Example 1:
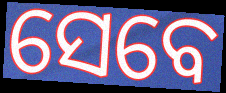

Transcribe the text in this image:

ସେବେ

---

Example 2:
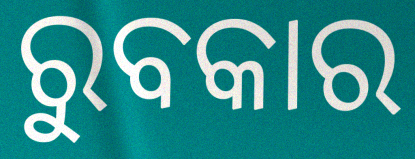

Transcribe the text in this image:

ରୁବକାର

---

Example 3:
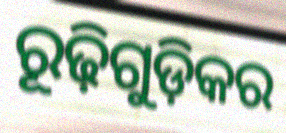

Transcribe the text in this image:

ରୂଢ଼ିଗୁଡ଼ିକର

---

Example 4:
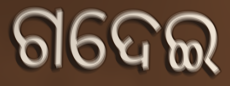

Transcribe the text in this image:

ଗଦେଇ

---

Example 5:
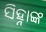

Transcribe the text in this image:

ସିହ୍ନାଙ୍କ